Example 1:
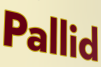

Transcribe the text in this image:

Pallid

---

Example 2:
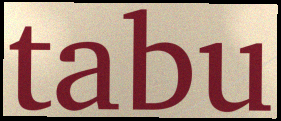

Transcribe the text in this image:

tabu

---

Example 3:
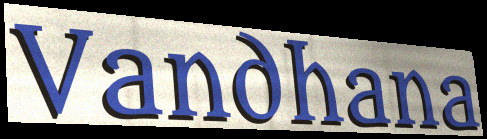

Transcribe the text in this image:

Vandhana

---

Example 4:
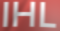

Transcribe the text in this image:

IHL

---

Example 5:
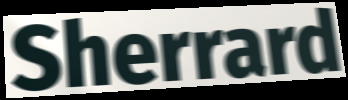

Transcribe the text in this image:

Sherrard